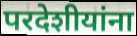
परदेशीयांना